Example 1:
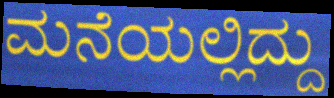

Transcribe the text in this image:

ಮನೆಯಲ್ಲಿದ್ದು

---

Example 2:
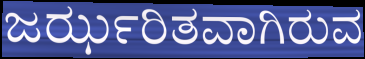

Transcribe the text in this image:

ಜರ್ಝರಿತವಾಗಿರುವ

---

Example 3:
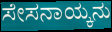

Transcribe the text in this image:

ಸೇಸನಾಯ್ಕನು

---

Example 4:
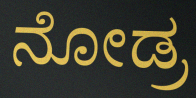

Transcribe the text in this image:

ನೋಡ್ರ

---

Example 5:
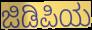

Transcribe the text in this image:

ಜಿಡಿಪಿಯ